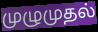
முழுமுதல்